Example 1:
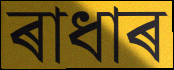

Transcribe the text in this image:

ৰাধাৰ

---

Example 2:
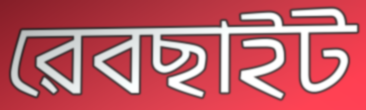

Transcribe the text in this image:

ৱেবছাইট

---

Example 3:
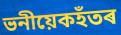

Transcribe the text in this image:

ভনীয়েকহঁতৰ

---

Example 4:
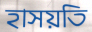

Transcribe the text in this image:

হাসয়তি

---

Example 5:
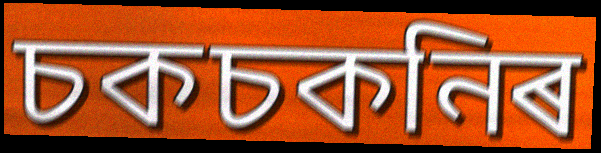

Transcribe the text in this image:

চকচকনিৰ